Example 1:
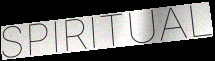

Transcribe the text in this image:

SPIRITUAL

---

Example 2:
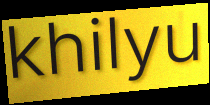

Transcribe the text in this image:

khilyu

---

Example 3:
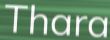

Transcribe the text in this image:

Thara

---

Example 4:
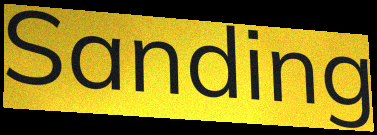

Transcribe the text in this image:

Sanding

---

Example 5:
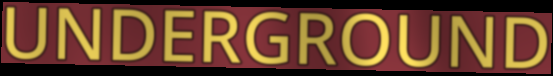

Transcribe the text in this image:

UNDERGROUND